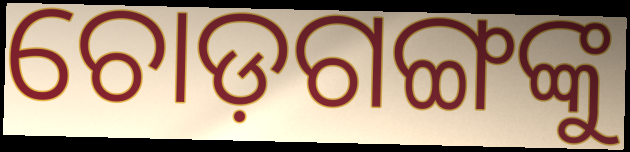
ଚୋଡ଼ଗଙ୍ଗଙ୍କୁ